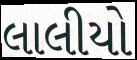
લાલીયો